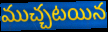
ముచ్చటయిన